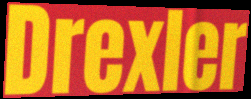
Drexler